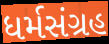
ધર્મસંગ્રહ